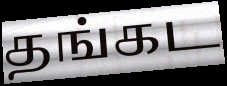
தங்கட